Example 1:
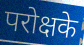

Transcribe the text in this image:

परोक्षके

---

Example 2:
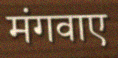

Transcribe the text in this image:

मंगवाए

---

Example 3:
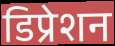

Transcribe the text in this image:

डिप्रेशन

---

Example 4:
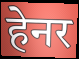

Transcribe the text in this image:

हेनर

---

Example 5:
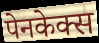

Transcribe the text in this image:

पेनकेक्स